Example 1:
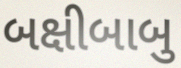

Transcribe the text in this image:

બક્ષીબાબુ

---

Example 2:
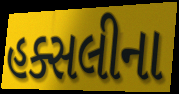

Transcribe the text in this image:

હક્સલીના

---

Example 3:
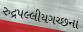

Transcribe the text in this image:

રુદ્રપલ્લીયગચ્છના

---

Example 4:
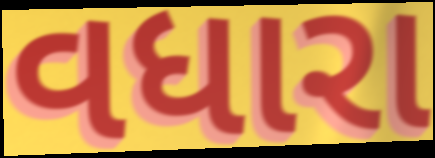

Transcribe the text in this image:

વધારા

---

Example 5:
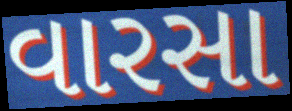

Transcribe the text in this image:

વારસા